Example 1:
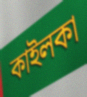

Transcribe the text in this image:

কাইলকা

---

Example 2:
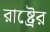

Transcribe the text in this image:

রাষ্ট্রের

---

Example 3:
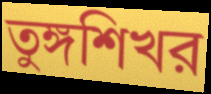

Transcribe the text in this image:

তুঙ্গশিখর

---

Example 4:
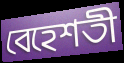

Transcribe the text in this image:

বেহেশতী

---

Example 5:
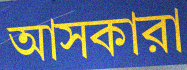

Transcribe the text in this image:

আসকারা